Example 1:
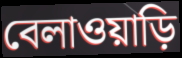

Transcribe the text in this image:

বেলাওয়াড়ি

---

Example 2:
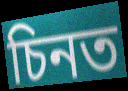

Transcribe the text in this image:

চিনত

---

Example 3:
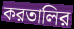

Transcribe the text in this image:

করতালির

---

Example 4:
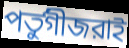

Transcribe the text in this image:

পর্তুগীজরাই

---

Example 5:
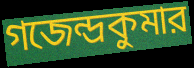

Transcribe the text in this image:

গজেন্দ্রকুমার